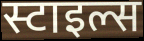
स्टाइल्स